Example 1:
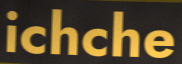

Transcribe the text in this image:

ichche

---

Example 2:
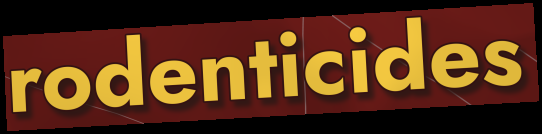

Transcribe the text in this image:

rodenticides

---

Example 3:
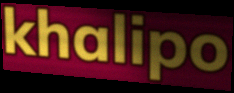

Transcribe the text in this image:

khalipo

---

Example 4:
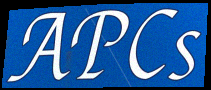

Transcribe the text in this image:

APCs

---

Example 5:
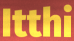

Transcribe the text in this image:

Itthi